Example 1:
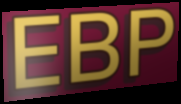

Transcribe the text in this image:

EBP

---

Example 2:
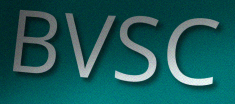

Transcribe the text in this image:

BVSC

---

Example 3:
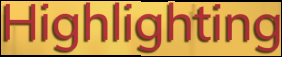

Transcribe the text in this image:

Highlighting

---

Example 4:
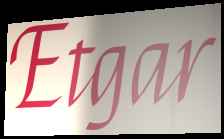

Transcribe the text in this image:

Etgar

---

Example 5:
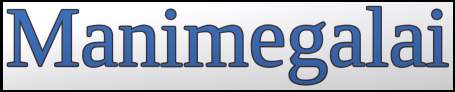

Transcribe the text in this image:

Manimegalai